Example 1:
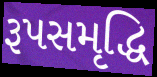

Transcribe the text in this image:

રૂપસમૃદ્ધિ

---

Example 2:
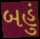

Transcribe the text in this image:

બહું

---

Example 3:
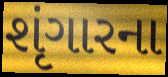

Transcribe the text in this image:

શૃંગારના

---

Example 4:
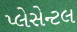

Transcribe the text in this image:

પ્લેસેન્ટલ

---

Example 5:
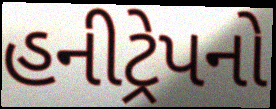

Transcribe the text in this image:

હનીટ્રેપનો